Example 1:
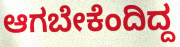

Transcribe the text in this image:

ಆಗಬೇಕೆಂದಿದ್ದ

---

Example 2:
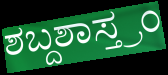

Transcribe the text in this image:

ಶಬ್ದಶಾಸ್ತ್ರಂ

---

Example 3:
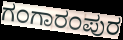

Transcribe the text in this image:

ಗಂಗಾರಂಪುರ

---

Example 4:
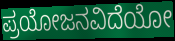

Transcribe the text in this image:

ಪ್ರಯೋಜನವಿದೆಯೋ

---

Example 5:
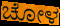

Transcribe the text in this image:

ಚೋಳ